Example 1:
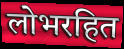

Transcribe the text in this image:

लोभरहित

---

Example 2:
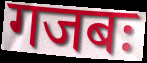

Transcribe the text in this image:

गजबः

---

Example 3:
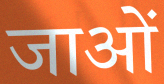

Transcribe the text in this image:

जाओं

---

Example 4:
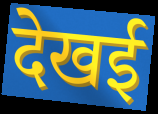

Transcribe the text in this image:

देखई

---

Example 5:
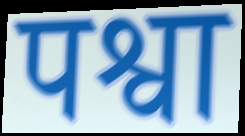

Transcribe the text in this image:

पश्वा